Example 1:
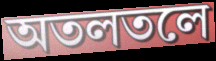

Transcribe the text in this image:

অতলতলে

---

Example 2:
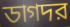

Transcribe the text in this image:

ডাগদর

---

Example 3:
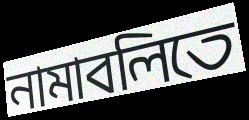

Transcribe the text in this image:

নামাবলিতে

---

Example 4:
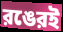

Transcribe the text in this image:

রঙেরই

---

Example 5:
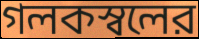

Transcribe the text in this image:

গলকস্বলের